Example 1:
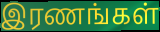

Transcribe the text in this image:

இரணங்கள்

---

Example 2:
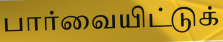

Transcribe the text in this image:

பார்வையிட்டுக்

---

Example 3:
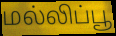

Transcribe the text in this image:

மல்லிப்பூ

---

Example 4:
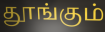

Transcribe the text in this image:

தூங்கும்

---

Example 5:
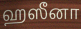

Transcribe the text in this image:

ஹஸீனா